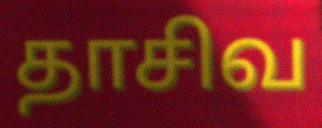
தாசிவ